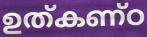
ഉത്കണ്ഠ